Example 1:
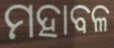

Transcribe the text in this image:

ମହାବଳ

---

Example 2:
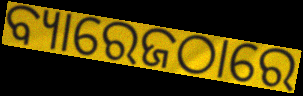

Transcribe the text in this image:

ବ୍ୟାରେଜଠାରେ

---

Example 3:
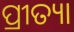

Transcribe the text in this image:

ପ୍ରୀତ୍ୟା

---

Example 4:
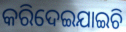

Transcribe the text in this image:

କରିଦେଇଯାଇଚି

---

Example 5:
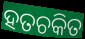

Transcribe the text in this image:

ହତଚକିତ